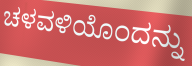
ಚಳವಳಿಯೊಂದನ್ನು